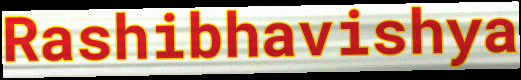
Rashibhavishya